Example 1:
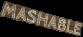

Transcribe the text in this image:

MASHABLE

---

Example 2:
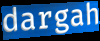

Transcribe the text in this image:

dargah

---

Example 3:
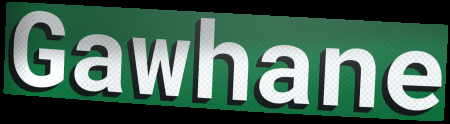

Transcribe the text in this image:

Gawhane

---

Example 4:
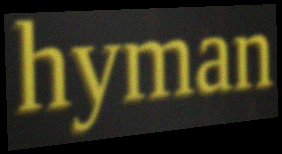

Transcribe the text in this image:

hyman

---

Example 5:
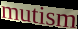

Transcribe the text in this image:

mutism